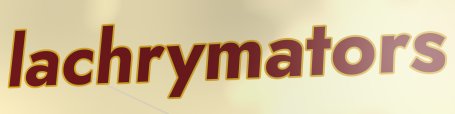
lachrymators